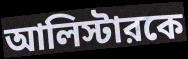
আলিস্টারকে